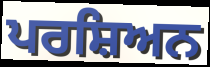
ਪਰਸ਼ਿਅਨ